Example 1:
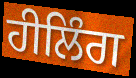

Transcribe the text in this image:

ਹੀਲਿੰਗ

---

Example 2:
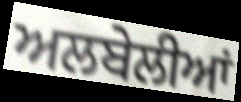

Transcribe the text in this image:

ਅਲਬੇਲੀਆਂ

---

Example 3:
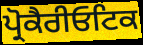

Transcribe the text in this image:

ਪ੍ਰੋਕੈਰੀਓਟਿਕ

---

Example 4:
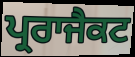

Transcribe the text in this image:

ਪ੍ਰਰਾਜੈਕਟ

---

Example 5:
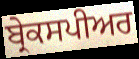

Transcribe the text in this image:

ਬ੍ਰੇਕਸਪੀਅਰ